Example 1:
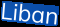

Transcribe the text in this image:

Liban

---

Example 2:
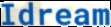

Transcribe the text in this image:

Idream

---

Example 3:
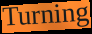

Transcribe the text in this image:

Turning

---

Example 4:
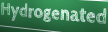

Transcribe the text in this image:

Hydrogenated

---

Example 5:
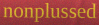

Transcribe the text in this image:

nonplussed